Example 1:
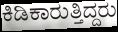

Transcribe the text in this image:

ಕಿಡಿಕಾರುತ್ತಿದ್ದರು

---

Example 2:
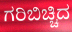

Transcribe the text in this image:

ಗರಿಬಿಚ್ಚಿದ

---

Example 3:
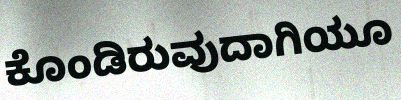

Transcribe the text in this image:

ಕೊಂಡಿರುವುದಾಗಿಯೂ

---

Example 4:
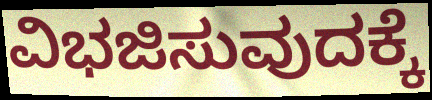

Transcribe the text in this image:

ವಿಭಜಿಸುವುದಕ್ಕೆ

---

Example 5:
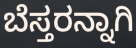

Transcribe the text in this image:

ಬೆಸ್ತರನ್ನಾಗಿ